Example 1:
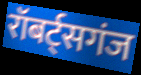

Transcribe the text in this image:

रॉबर्ट्सगंज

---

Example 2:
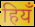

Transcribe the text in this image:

हियँ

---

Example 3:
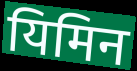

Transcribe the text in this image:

यिमिन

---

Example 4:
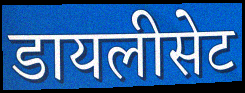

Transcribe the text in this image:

डायलीसेट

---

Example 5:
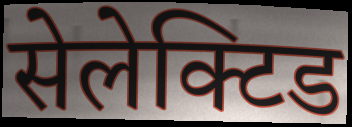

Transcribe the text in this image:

सेलेक्टिड